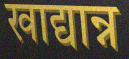
खाद्यान्न